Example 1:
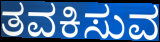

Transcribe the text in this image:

ತವಕಿಸುವ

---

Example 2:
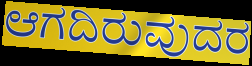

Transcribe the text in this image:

ಆಗದಿರುವುದರ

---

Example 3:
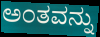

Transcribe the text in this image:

ಅಂತವನ್ನು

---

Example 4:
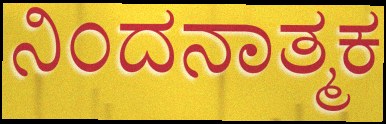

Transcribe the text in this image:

ನಿಂದನಾತ್ಮಕ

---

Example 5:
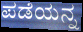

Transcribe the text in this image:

ಪಡೆಯನ್ನ